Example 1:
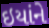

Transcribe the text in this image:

ઇયાંને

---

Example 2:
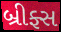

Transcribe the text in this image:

બ્રીફ્સ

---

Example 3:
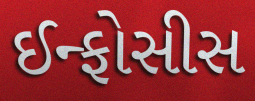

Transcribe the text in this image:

ઈન્ફોસીસ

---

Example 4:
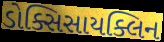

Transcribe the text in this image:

ડોક્સિસાયક્લિન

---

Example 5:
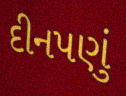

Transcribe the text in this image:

દીનપણું